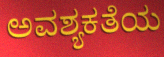
ಅವಶ್ಯಕತೆಯ